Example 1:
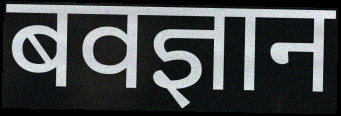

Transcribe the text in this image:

बवज्ञान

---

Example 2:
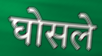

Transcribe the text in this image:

घोसले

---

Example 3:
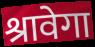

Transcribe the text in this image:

श्रावेगा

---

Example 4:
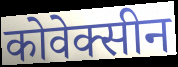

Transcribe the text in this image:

कोवेक्सीन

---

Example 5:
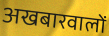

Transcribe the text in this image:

अखबारवालों